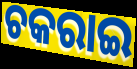
ଚକରାଇ